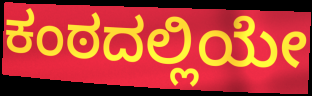
ಕಂಠದಲ್ಲಿಯೇ